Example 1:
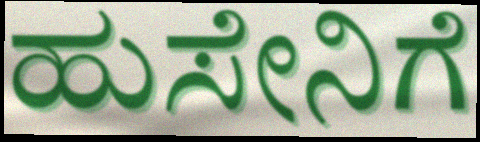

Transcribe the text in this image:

ಹುಸೇನಿಗೆ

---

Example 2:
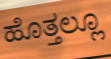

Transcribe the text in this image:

ಹೊತ್ತಲ್ಲೂ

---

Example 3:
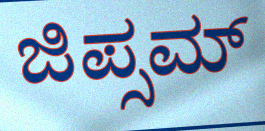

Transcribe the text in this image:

ಜಿಪ್ಸಮ್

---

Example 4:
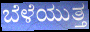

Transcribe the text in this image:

ಬೆಳೆಯುತ್ತ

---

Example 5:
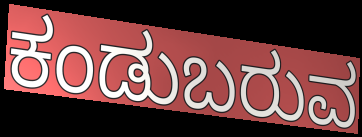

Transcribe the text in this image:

ಕಂಡುಬರುವ